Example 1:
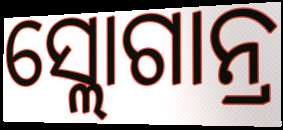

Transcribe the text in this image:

ସ୍ଲୋଗାନ୍ର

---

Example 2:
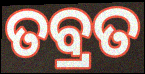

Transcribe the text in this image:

ତବ୍ରତ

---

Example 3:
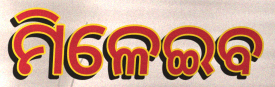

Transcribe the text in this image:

ମିଳେଇବ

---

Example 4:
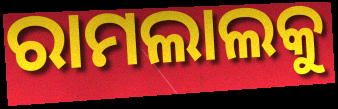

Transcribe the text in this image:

ରାମଲାଲକୁ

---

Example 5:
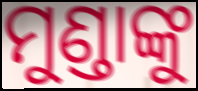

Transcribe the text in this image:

ମୁଣ୍ଡାଙ୍କୁ